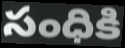
సంధికి